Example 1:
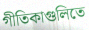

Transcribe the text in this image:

গীতিকাগুলিতে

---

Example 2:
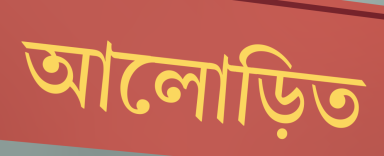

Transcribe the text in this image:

আলোড়িত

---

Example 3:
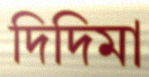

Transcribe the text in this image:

দিদিমা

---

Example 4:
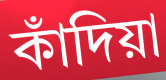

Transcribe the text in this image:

কাঁদিয়া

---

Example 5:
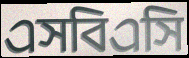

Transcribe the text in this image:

এসবিএসি